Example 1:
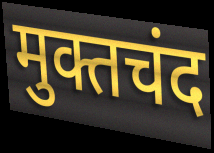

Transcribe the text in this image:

मुक्तचंद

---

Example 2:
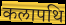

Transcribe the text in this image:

कलापथि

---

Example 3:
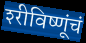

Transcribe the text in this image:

श्रीविष्णूंचं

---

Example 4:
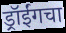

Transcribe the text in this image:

ड्रॉईंगचा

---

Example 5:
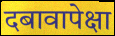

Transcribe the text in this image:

दबावापेक्षा